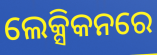
ଲେକ୍ସିକନରେ